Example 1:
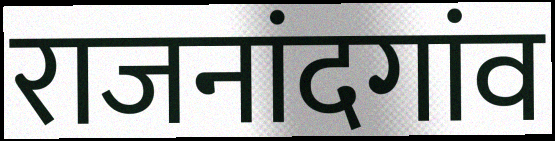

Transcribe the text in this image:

राजनांदगांव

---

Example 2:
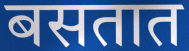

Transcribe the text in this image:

बसतात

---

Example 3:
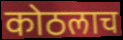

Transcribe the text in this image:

कोठलाच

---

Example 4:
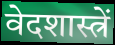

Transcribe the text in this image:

वेदशास्त्रें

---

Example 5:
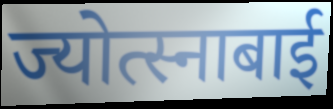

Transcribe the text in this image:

ज्योत्स्नाबाई